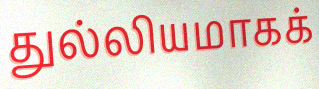
துல்லியமாகக்